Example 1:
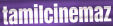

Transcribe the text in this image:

tamilcinemaz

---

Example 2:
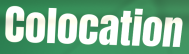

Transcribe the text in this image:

Colocation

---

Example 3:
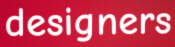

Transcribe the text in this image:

designers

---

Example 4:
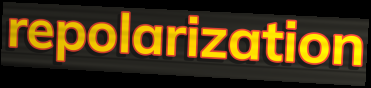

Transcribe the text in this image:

repolarization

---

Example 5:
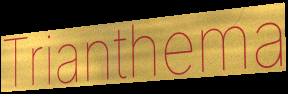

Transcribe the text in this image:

Trianthema